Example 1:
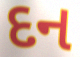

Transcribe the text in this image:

દન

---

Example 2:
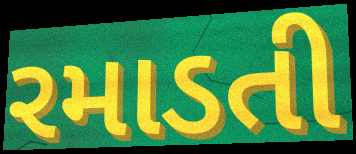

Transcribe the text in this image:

રમાડતી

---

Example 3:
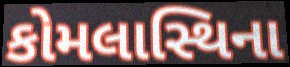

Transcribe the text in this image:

કોમલાસ્થિના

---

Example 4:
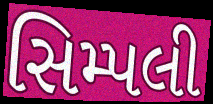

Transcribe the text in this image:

સિમ્પલી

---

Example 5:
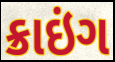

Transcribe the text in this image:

ક્રાઇંગ